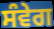
ਸੰਵੇਗ